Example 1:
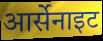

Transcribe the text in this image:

आर्सेनाइट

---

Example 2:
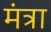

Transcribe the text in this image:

मंत्रा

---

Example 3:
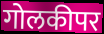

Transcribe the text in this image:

गोलकीपर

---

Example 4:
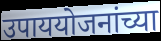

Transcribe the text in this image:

उपाययोजनांच्या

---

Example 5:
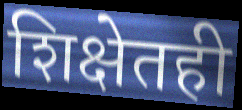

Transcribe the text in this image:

शिक्षेतही